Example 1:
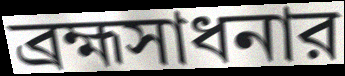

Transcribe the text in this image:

ব্রহ্মসাধনার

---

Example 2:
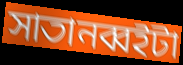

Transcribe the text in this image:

সাতানব্বইটা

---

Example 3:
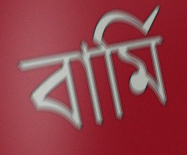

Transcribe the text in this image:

বার্মি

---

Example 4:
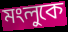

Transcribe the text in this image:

মংলুকে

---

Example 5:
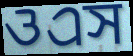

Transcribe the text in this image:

ওএস